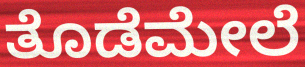
ತೊಡೆಮೇಲೆ